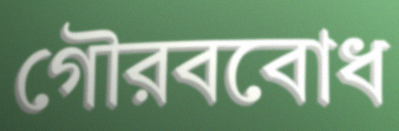
গৌরববোধ